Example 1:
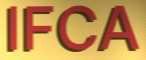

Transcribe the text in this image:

IFCA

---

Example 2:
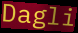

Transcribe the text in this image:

Dagli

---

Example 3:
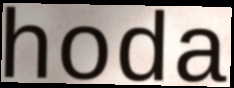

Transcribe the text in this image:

hoda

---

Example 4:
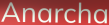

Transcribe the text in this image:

Anarcha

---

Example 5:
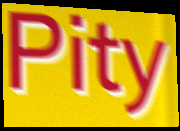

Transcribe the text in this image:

Pity